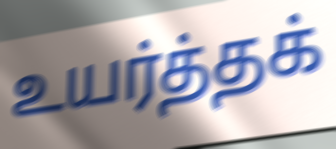
உயர்த்தக்